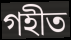
গহীত